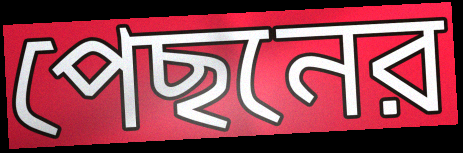
পেছনের